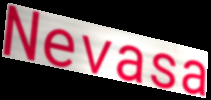
Nevasa